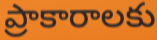
ప్రాకారాలకు